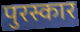
पुरस्कार